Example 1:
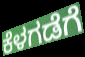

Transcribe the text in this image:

ಕೆಳಗಡೆಗೆ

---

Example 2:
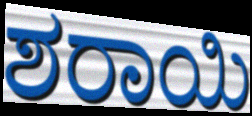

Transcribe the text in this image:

ಶರಾಯಿ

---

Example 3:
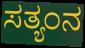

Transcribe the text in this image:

ಸತ್ಯಂನ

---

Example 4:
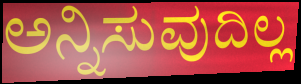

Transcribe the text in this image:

ಅನ್ನಿಸುವುದಿಲ್ಲ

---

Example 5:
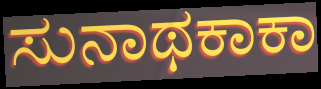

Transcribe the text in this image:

ಸುನಾಥಕಾಕಾ